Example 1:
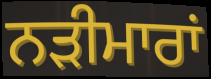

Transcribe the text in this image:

ਨੜੀਮਾਰਾਂ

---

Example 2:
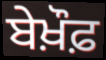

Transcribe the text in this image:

ਬੇਖ਼ੌਫ਼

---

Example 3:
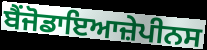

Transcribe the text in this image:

ਬੈਂਜੋਡਾਇਆਜ਼ੇਪੀਨਸ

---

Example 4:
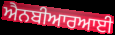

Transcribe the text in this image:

ਐਨਬੀਆਰਆਈ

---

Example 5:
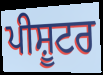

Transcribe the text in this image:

ਪੀਸ਼ੂਟਰ